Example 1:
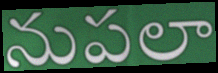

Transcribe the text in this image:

నుపలా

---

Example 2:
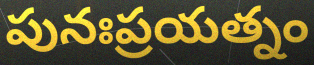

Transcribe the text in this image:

పునఃప్రయత్నం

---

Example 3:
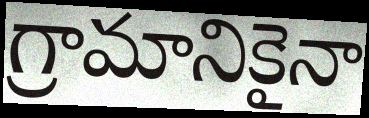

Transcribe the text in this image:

గ్రామానికైనా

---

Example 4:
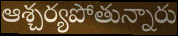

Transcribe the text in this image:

ఆశ్చర్యపోతున్నారు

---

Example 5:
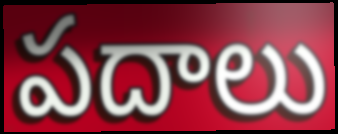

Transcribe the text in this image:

పదాలు